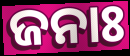
ଜନାଃ